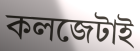
কলজেটাই